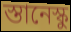
স্তানেস্কু